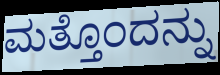
ಮತ್ತೊಂದನ್ನು